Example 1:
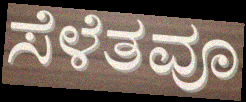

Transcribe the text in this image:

ಸೆಳೆತವೂ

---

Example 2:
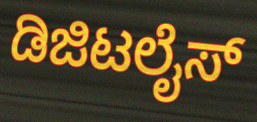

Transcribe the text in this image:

ಡಿಜಿಟಲೈಸ್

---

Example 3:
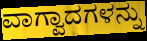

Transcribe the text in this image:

ವಾಗ್ವಾದಗಳನ್ನು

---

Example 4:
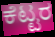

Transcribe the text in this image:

ಕೆಟ್ಟರ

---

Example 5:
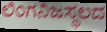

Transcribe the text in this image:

ಲಿಂಗನಿಜಸ್ಥಲದ